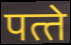
पत्‍ते